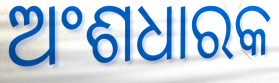
ଅଂଶଧାରକ